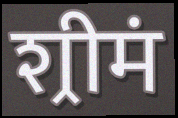
श्रीमं